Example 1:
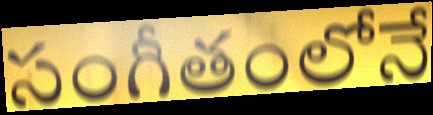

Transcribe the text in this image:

సంగీతంలోనే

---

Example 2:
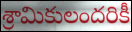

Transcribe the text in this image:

శ్రామికులందరికీ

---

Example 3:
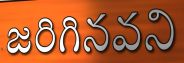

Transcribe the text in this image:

జరిగినవని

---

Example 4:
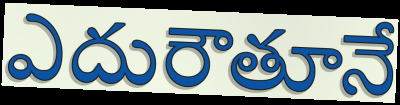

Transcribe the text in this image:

ఎదురౌతూనే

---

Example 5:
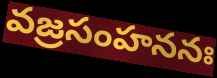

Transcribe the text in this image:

వజ్రసంహననః